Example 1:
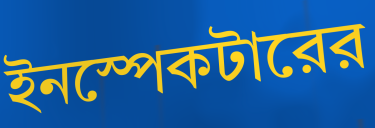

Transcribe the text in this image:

ইনস্পেকটারের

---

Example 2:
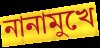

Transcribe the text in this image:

নানামুখে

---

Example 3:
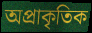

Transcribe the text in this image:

অপ্রাকৃতিক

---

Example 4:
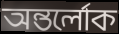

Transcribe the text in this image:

অন্তর্লোক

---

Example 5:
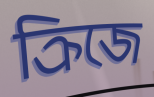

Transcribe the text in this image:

ক্রিজে